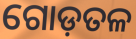
ଗୋଡ଼ତଳ